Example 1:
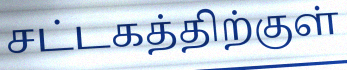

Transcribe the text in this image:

சட்டகத்திற்குள்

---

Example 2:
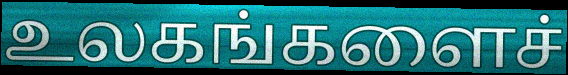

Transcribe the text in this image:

உலகங்களைச்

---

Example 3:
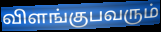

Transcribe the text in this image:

விளங்குபவரும்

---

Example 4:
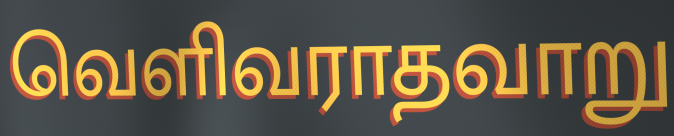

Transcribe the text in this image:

வெளிவராதவாறு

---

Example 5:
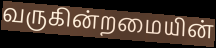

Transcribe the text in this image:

வருகின்றமையின்